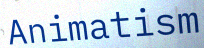
Animatism